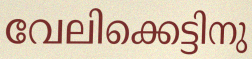
വേലിക്കെട്ടിനു